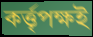
কৰ্ত্তৃপক্ষই